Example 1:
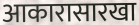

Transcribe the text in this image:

आकारासारखा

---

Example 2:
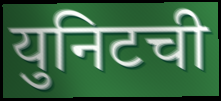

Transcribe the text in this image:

युनिटची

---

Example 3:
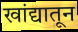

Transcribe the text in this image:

खांद्यातून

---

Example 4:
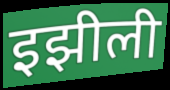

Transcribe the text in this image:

इझीली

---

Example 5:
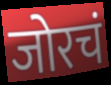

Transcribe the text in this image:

जोरचं